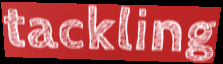
tackling